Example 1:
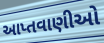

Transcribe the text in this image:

આપ્તવાણીઓ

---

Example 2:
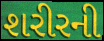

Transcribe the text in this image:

શરીરની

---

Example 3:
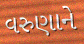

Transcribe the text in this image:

વરુણાને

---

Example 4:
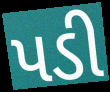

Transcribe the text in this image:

પડી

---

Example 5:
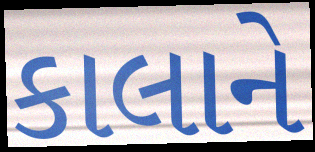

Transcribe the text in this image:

કાલાને